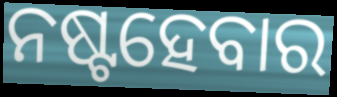
ନଷ୍ଟହେବାର